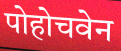
पोहोचवेन